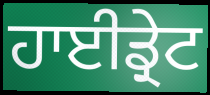
ਹਾਈਡ੍ਰੇਟ